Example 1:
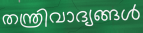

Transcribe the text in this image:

തന്ത്രിവാദ്യങ്ങൾ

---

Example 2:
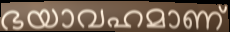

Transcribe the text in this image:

ഭയാവഹമാണ്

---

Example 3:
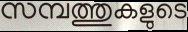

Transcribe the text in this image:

സമ്പത്തുകളുടെ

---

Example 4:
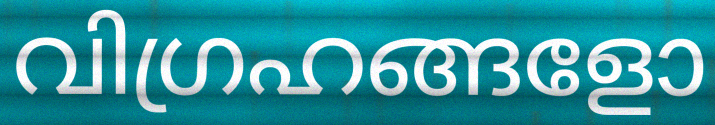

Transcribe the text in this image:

വിഗ്രഹങ്ങളോ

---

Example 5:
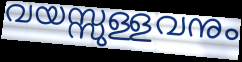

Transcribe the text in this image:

വയസ്സുള്ളവനും